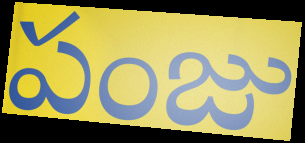
పంజు